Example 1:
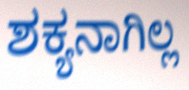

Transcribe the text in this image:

ಶಕ್ಯನಾಗಿಲ್ಲ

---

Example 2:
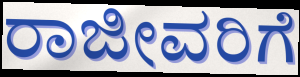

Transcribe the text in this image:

ರಾಜೀವರಿಗೆ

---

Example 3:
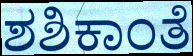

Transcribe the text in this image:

ಶಶಿಕಾಂತೆ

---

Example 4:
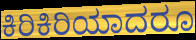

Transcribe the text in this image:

ಕಿರಿಕಿರಿಯಾದರೂ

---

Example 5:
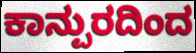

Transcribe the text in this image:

ಕಾನ್ಪುರದಿಂದ